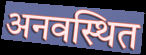
अनवस्थित